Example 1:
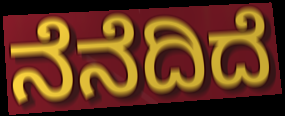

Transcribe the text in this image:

ನೆನೆದಿದೆ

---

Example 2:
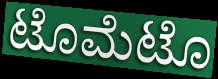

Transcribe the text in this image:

ಟೊಮೆಟೊ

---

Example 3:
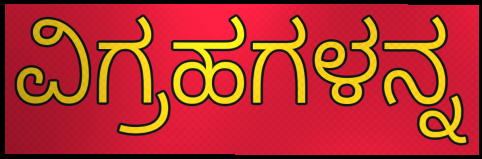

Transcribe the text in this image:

ವಿಗ್ರಹಗಳನ್ನ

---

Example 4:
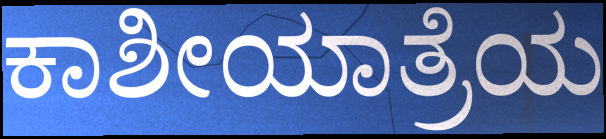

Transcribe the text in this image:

ಕಾಶೀಯಾತ್ರೆಯ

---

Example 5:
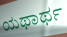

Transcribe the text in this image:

ಯಥಾರ್ಥ